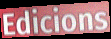
Edicions